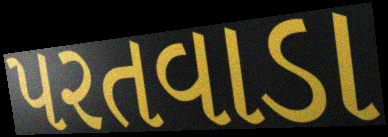
પરતવાડા